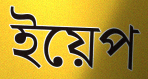
ইয়েপ